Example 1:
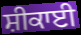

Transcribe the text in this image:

ਸ਼ੀਕਾਈ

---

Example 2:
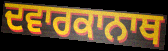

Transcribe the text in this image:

ਦਵਾਰਕਾਨਾਥ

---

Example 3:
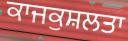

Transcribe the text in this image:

ਕਾਜਕੁਸ਼ਲਤਾ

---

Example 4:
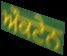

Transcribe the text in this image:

ਔਕਟੇਨ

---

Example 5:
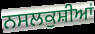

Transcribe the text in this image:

ਨਸਲਕੁਸ਼ੀਆਂ